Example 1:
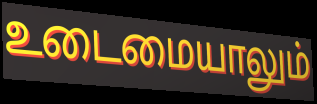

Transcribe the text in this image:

உடைமையாலும்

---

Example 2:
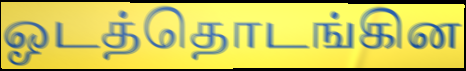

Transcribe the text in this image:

ஓடத்தொடங்கின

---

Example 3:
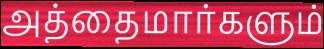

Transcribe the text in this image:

அத்தைமார்களும்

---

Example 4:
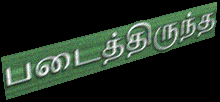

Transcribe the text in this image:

படைத்திருந்த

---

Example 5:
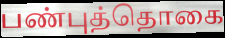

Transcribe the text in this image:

பண்புத்தொகை